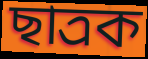
ছাত্ৰক